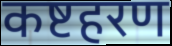
कष्टहरण